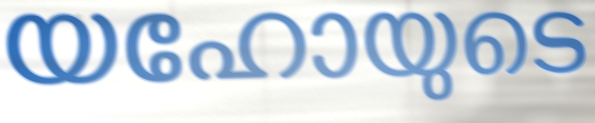
യഹോയുടെ